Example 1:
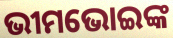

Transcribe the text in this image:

ଭୀମଭୋଇଙ୍କ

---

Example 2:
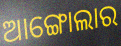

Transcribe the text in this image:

ଆଙ୍ଗୋଲାର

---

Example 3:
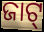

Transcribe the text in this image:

ଜାଟ୍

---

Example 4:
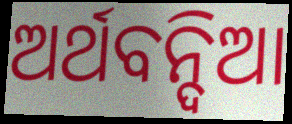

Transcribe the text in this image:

ଅର୍ଥବନ୍ଦିଆ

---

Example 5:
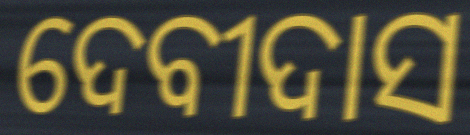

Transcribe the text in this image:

ଦେବୀଦାସ